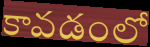
కావడంలో